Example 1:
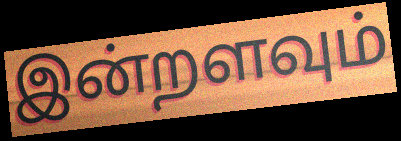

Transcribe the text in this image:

இன்றளவும்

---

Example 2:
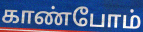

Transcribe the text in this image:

காண்போம்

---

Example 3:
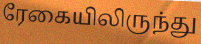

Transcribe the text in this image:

ரேகையிலிருந்து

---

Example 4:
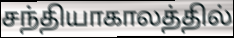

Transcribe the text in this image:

சந்தியாகாலத்தில்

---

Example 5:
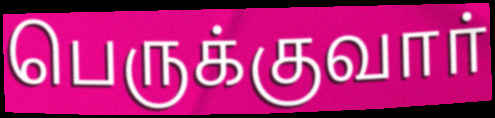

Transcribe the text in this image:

பெருக்குவார்